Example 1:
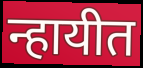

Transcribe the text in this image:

न्हायीत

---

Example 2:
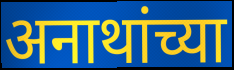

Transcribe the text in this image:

अनाथांच्या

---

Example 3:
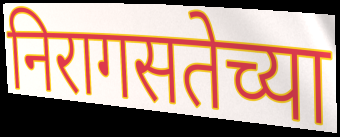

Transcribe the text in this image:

निरागसतेच्या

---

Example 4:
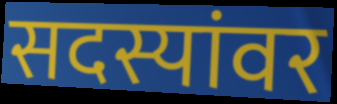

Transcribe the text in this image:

सदस्यांवर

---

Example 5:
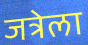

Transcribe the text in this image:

जत्रेला